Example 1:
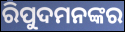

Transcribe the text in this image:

ରିପୁଦମନଙ୍କର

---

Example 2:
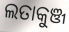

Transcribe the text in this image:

ଲତାକୁଞ୍ଜ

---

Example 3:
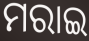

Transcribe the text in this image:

ମରାଇ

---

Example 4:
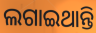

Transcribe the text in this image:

ଲଗାଇଥାନ୍ତି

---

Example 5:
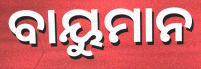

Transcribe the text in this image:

ବାୟୁମାନ